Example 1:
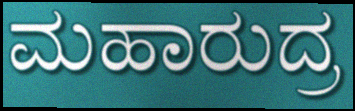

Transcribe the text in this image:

ಮಹಾರುದ್ರ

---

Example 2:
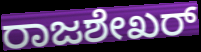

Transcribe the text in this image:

ರಾಜಶೇಖರ್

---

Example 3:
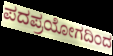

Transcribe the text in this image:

ಪದಪ್ರಯೋಗದಿಂದ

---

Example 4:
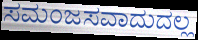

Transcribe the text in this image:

ಸಮಂಜಸವಾದುದಲ್ಲ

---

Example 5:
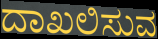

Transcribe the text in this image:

ದಾಖಲಿಸುವ